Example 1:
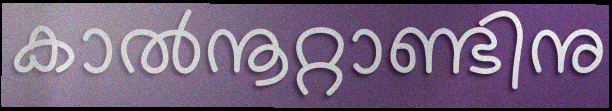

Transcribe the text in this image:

കാൽനൂറ്റാണ്ടിനു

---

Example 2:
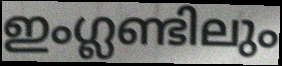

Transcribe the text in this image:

ഇംഗ്ലണ്ടിലും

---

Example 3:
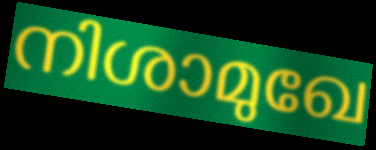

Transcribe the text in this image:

നിശാമുഖേ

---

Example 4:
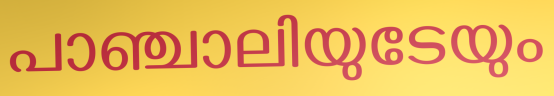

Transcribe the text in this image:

പാഞ്ചാലിയുടേയും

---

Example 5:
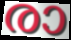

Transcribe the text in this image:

രാ